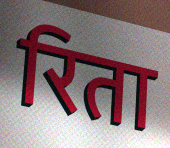
रिता